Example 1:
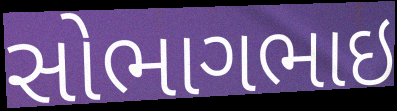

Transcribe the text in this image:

સોભાગભાઇ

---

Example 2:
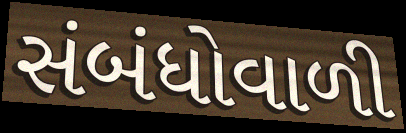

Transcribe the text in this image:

સંબંધોવાળી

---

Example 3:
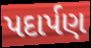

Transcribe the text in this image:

પદાર્પણ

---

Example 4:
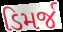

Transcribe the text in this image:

ડિમર્જ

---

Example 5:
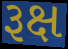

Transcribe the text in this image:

રૂક્ષ